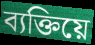
ব্যক্তিয়ে